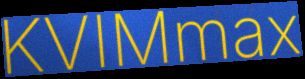
KVIMmax